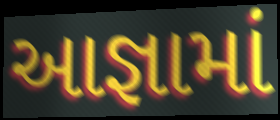
આજ્ઞામાં